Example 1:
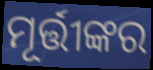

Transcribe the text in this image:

ମୂର୍ତ୍ତୀଙ୍କର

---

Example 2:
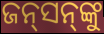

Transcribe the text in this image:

ଜନ୍‍ସନ୍‍ଙ୍କୁ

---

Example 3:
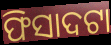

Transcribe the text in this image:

ଫିସାଦଟା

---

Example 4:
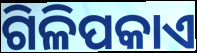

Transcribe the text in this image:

ଗିଳିପକାଏ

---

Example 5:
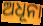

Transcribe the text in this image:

ଅଧୂନା